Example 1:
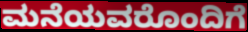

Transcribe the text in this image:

ಮನೆಯವರೊಂದಿಗೆ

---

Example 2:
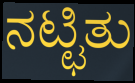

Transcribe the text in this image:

ನಟ್ಟಿತು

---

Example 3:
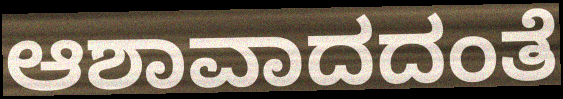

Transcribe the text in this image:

ಆಶಾವಾದದಂತೆ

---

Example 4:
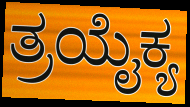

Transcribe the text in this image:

ತ್ರಯೈಕ್ಯ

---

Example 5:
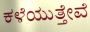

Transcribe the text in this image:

ಕಳೆಯುತ್ತೇವೆ